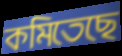
কমিতেছে